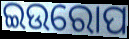
ଇଉରୋପ